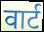
वार्ट